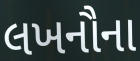
લખનૌના